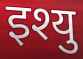
इश्यु